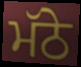
ਮੱਠੇ